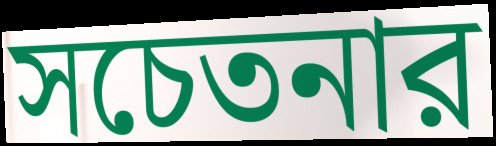
সচেতনার